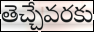
తెచ్చేవరకు